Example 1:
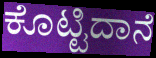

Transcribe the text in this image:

ಕೊಟ್ಟಿದಾನೆ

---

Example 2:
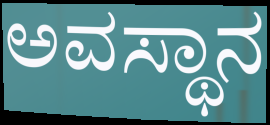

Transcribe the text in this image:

ಅವಸ್ಥಾನ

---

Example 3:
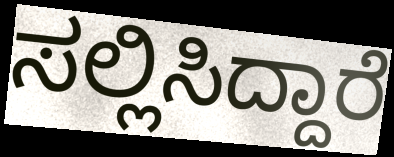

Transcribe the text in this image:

ಸಲ್ಲಿಸಿದ್ದಾರೆ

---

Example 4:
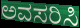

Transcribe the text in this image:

ಅವಸರಿಸಿ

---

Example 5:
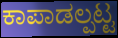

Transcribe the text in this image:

ಕಾಪಾಡಲ್ಪಟ್ಟ